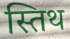
स्तिथ